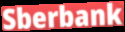
Sberbank